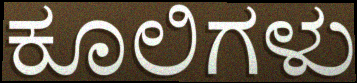
ಕೂಲಿಗಳು